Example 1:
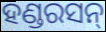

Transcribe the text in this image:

ହଣ୍ଡରସନ୍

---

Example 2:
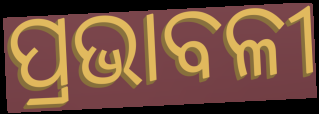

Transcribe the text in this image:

ପ୍ରଭାବଳୀ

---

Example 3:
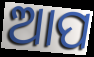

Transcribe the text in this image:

ଆପ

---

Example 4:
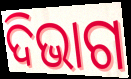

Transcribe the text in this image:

ଦିଭାଗ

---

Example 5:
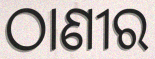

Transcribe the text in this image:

ଠାଣୀର